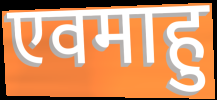
एवमाहु